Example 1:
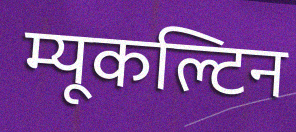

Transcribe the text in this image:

म्यूकल्टिन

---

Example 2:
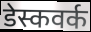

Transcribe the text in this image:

डेस्कवर्क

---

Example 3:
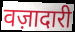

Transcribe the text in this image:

वज़ादारी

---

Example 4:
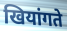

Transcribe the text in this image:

खियांगते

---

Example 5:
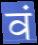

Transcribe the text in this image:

वं